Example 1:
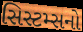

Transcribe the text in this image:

સિસ્ટમ્સનો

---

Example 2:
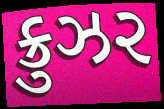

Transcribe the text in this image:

ક્રુઝર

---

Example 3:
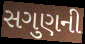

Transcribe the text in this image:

સગુણની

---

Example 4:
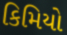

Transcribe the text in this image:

કિમિયો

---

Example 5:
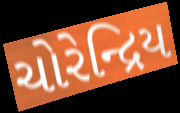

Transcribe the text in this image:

ચોરેન્દ્રિય